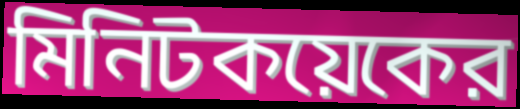
মিনিটকয়েকের